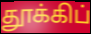
தூக்கிப்